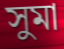
সুমা